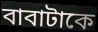
বাবাটাকে